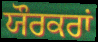
ਯੌਰਕਰਾਂ